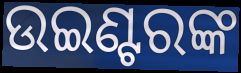
ଉଇଣ୍ଟରଙ୍କ